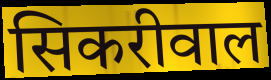
सिकरीवाल